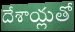
దేశాయ్లతో